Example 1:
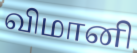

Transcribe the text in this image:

விமானி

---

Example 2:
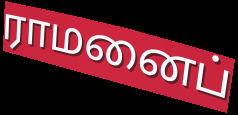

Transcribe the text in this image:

ராமனைப்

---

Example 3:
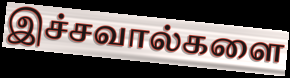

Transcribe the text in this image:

இச்சவால்களை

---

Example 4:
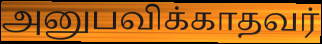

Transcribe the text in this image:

அனுபவிக்காதவர்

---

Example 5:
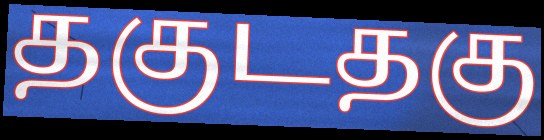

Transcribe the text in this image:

தகுடதகு